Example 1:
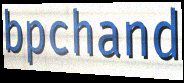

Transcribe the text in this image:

bpchand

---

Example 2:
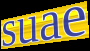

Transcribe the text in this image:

suae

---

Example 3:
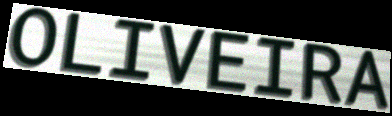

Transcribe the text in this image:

OLIVEIRA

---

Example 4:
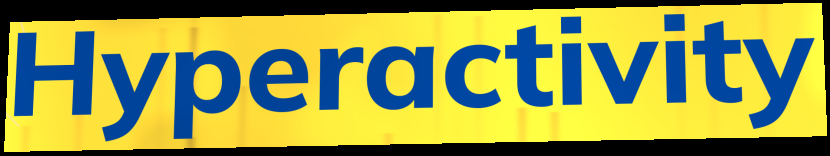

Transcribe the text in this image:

Hyperactivity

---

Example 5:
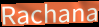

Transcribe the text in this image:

Rachana